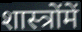
शास्त्रोंमें